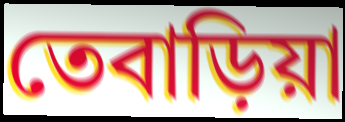
তেবাড়িয়া